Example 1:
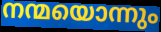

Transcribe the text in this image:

നന്മയൊന്നും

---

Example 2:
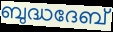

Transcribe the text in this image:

ബുദ്ധദേബ്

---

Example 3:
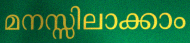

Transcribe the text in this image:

മനസ്സിലാക്കാം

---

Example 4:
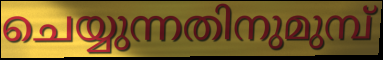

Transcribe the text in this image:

ചെയ്യുന്നതിനുമുമ്പ്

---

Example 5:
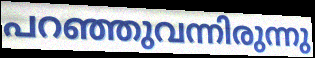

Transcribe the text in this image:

പറഞ്ഞുവന്നിരുന്നു